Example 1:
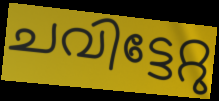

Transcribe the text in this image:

ചവിട്ടേറ്റു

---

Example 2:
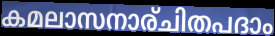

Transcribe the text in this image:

കമലാസനാര്ചിതപദാം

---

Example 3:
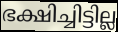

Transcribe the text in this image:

ഭക്ഷിച്ചിട്ടില്ല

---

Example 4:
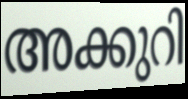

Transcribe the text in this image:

അക്കുറി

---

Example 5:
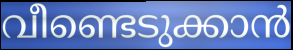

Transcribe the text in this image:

വീണ്ടെടുക്കാൻ